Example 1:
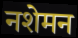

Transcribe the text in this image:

नशेमन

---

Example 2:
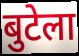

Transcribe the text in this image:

बुटेला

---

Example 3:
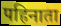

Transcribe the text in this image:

पहिनाता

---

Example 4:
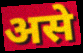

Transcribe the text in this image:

असे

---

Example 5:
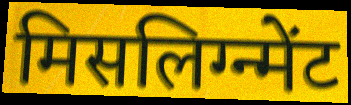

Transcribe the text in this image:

मिसलिग्न्मेंट